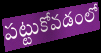
పట్టుకోవడంలో